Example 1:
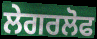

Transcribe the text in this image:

ਲੇਗਰਲੋਫ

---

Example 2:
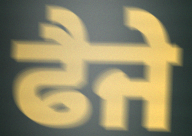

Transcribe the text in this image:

ਫੈਜੇ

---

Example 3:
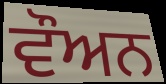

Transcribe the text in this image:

ਵੌਅਨ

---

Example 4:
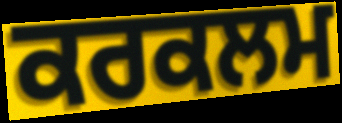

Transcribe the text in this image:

ਕਰਕਲਮ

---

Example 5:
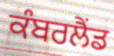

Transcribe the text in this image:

ਕੰਬਰਲੈਂਡ